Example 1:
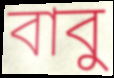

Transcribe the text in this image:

বাবু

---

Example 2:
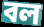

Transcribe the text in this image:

বল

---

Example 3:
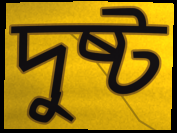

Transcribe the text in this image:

দুষ্ট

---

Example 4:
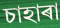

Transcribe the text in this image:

চাহাৰা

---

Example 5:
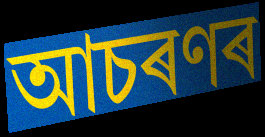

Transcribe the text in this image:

আচৰণৰ